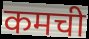
कमची